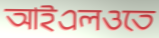
আইএলওতে